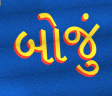
બોજું